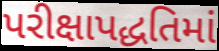
પરીક્ષાપદ્ધતિમાં